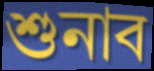
শুনাব